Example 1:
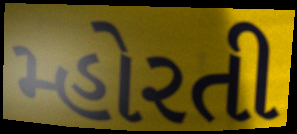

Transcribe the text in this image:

મ્હોરતી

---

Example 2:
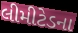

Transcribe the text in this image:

લીમીટેડના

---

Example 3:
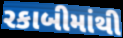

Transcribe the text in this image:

રકાબીમાંથી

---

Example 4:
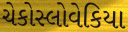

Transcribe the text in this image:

ચેકોસ્લોવેકિયા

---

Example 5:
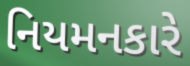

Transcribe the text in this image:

નિયમનકારે